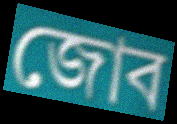
জোব